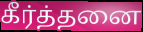
கீர்த்தனை